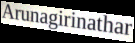
Arunagirinathar